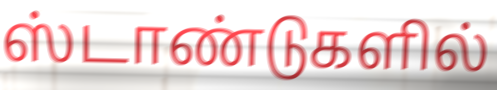
ஸ்டாண்டுகளில்